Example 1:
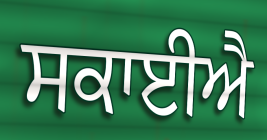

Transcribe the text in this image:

ਸਕਾਈਐ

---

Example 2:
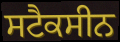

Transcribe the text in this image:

ਸਟੈਕਸੀਨ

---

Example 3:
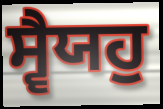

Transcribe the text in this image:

ਸ੍ਵੈਯਹੁ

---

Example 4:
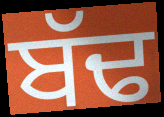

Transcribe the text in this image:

ਬੱਢ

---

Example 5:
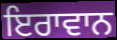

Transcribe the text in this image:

ਇਰਾਵਾਨ